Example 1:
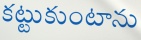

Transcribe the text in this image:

కట్టుకుంటాను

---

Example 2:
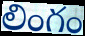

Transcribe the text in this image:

లింగం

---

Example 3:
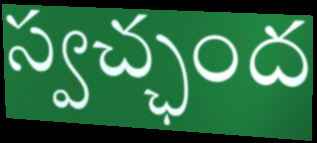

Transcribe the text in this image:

స్వచ్ఛంద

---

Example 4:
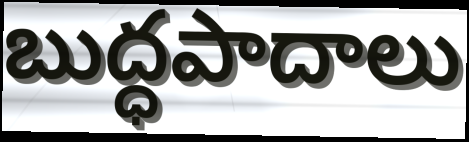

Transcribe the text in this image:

బుద్ధపాదాలు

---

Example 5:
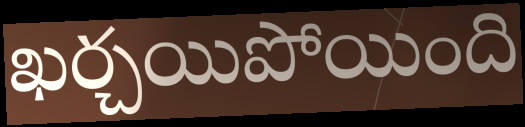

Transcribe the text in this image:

ఖర్చయిపోయింది